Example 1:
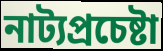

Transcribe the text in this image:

নাট্যপ্রচেষ্টা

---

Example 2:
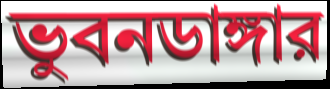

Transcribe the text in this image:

ভুবনডাঙ্গার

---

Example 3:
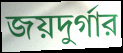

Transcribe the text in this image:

জয়দুর্গার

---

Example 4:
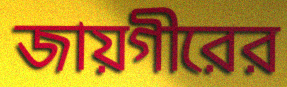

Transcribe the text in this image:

জায়গীরের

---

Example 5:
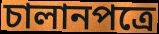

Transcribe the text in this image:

চালানপত্রে